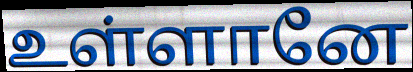
உள்ளானே